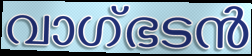
വാഗ്ഭടൻ